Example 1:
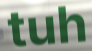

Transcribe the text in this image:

tuh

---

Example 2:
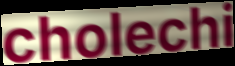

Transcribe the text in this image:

cholechi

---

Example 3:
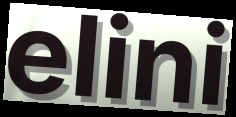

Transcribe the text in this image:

elini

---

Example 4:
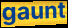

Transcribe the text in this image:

gaunt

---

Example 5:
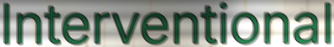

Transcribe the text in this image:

Interventional